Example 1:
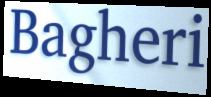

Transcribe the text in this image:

Bagheri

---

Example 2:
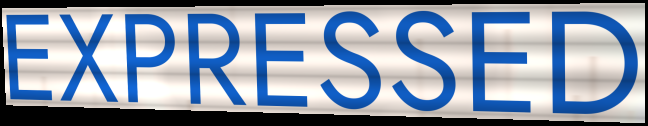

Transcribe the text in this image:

EXPRESSED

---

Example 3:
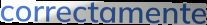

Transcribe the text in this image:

correctamente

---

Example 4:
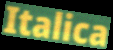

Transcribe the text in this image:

Italica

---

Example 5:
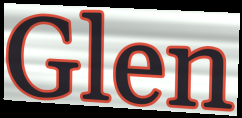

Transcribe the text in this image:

Glen